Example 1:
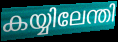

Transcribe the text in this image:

കയ്യിലേന്തി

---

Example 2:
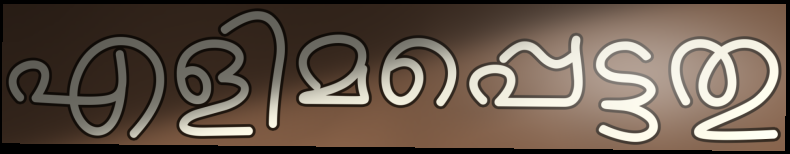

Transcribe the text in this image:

എളിമപ്പെട്ടതു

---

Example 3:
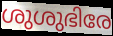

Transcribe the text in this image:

ശുശുഭിരേ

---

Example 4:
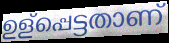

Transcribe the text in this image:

ഉള്പ്പെട്ടതാണ്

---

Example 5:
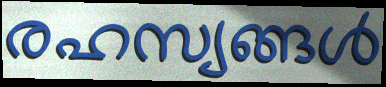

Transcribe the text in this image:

രഹസ്യങ്ങൾ